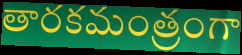
తారకమంత్రంగా